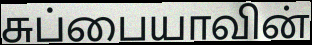
சுப்பையாவின்